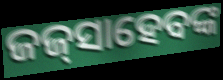
ଜଜ୍‍ସାହେବଙ୍କ